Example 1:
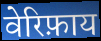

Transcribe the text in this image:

वेरिफ़ाय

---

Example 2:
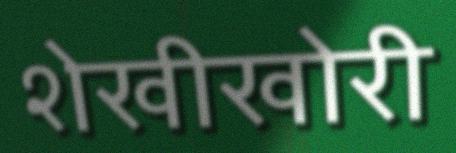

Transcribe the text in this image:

शेखीखोरी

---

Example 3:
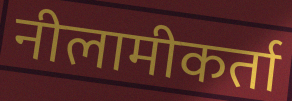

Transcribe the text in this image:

नीलामीकर्ता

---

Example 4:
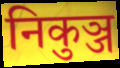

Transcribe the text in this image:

निकुञ्ज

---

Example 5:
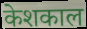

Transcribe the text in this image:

केशकाल